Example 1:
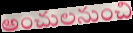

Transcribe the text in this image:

అంచులనుంచి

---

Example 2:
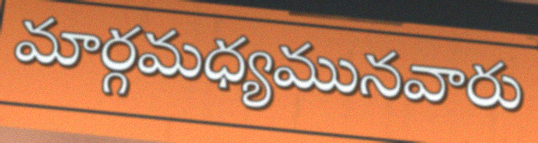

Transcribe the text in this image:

మార్గమధ్యమునవారు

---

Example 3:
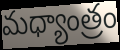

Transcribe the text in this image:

మధ్యాంత్రం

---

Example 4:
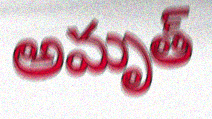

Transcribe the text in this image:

అమృత్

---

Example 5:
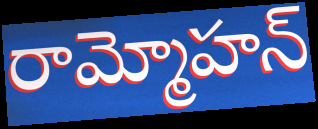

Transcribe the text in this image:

రామ్మోహన్